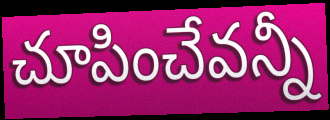
చూపించేవన్నీ